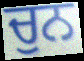
ਚੁਨ